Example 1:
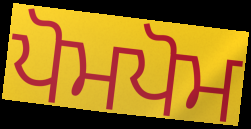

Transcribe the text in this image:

ਪੋਮਪੋਮ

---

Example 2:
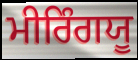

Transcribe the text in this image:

ਮੀਰਿੰਗਯੂ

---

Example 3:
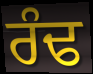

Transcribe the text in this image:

ਰੰਢ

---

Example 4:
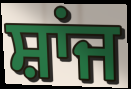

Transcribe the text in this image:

ਸ਼ਾਂਜ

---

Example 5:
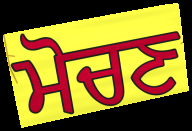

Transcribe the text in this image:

ਮੋਚਣ